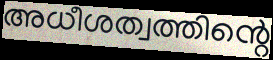
അധീശത്വത്തിന്റെ